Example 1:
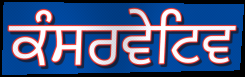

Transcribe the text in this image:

ਕੰਸਰਵੇਟਿਵ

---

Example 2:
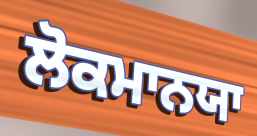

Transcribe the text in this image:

ਲੋਕਮਾਨਯਾ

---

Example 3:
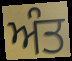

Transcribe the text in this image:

ਅੰਤ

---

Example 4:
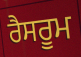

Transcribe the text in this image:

ਰੈਸਰੂਮ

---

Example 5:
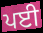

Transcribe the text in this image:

ਪਈ